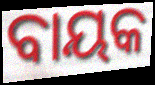
ବାୟକ